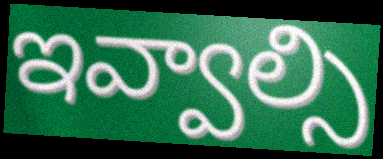
ఇవ్వాల్సి